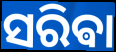
ସରିଵା